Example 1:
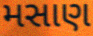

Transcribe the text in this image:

મસાણ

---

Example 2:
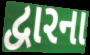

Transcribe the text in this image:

દ્વારના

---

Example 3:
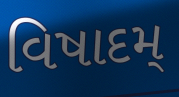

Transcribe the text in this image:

વિષાદમ્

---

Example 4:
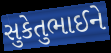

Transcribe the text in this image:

સુકેતુભાઈને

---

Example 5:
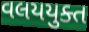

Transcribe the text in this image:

વલયયુક્ત